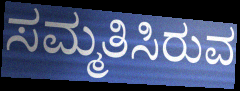
ಸಮ್ಮತಿಸಿರುವ